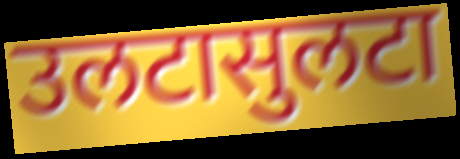
उलटासुलटा